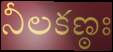
నీలకణ్ఠః